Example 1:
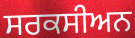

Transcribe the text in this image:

ਸਰਕਸੀਅਨ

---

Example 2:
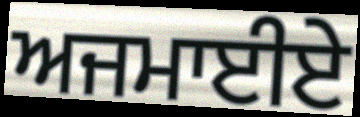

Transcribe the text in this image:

ਅਜਮਾਈਏ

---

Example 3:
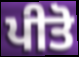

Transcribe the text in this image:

ਪੀਤੋ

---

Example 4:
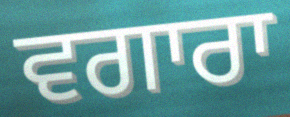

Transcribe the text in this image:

ਵਗਾਰਾ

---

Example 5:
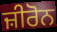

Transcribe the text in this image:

ਜ਼ੀਰੋਨ